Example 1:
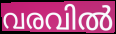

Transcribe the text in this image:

വരവിൽ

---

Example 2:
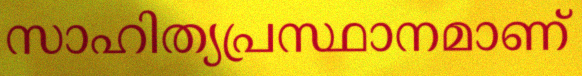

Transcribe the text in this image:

സാഹിത്യപ്രസ്ഥാനമാണ്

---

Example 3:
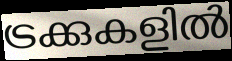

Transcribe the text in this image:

ട്രക്കുകളിൽ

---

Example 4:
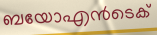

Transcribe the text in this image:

ബയോഎൻടെക്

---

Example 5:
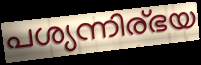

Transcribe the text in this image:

പശ്യന്നിര്ഭയ